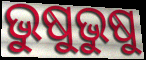
ଭୁଷୁଭୁଷୁ